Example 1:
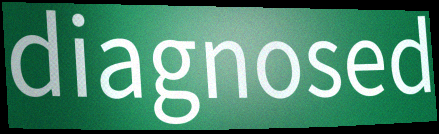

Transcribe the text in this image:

diagnosed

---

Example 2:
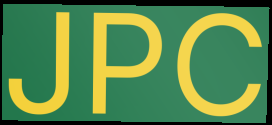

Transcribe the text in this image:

JPC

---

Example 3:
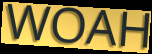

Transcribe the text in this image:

WOAH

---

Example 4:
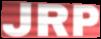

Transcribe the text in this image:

JRP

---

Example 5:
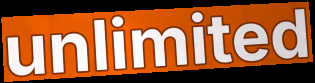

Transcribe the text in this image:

unlimited